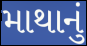
માથાનું